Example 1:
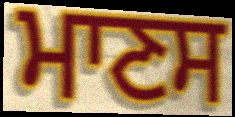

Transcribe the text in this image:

ਮਾਣਸ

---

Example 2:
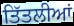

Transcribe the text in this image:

ਤਿੱਤਲੀਆਂ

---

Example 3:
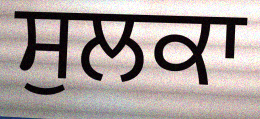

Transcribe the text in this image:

ਸੁਲਕਾ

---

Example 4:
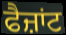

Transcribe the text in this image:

ਫੈਜ਼ਾਂਟ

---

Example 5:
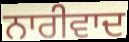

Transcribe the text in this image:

ਨਾਰੀਵਾਦ